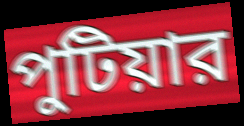
পুটিয়ার